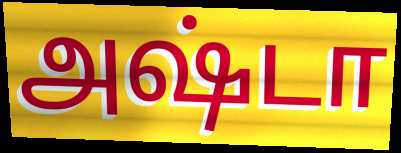
அஷ்டா